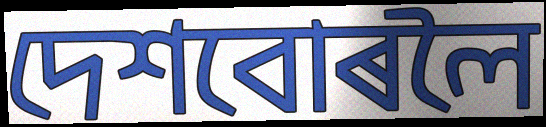
দেশবোৰলৈ